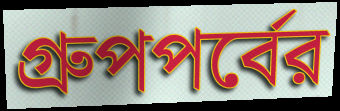
গ্রুপপর্বের